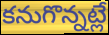
కనుగొన్నట్లే